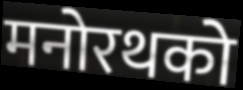
मनोरथको